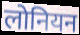
लोनियन